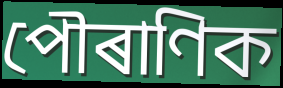
পৌৰাণিক